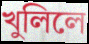
খুলিলে